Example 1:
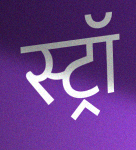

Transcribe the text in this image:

स्ट्रॉ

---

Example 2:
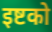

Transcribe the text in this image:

इष्टको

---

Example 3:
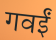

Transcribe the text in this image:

गवईं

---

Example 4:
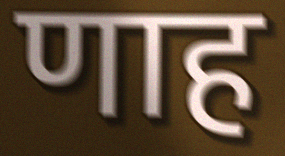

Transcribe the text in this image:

णाह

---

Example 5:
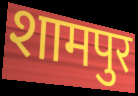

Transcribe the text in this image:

शामपुर